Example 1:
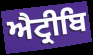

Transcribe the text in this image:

ਐਟ੍ਰੀਬਿ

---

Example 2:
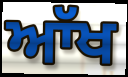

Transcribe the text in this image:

ਆੱਖ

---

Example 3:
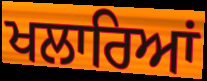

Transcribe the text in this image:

ਖਲਾਰਿਆਂ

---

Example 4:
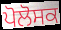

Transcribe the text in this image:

ਪੋਲੋਸਕ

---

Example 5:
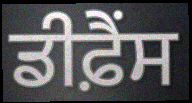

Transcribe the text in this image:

ਡੀਫ਼ੈਂਸ